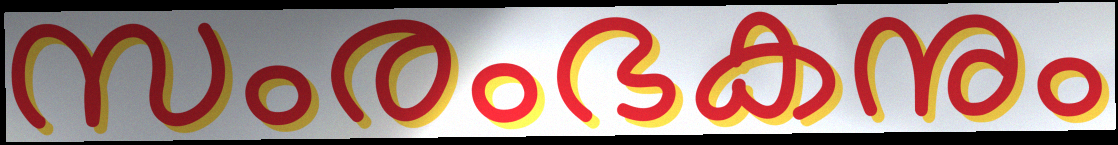
സംരംഭകനും